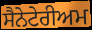
ਸੈਨੇਟੇਰੀਅਮ